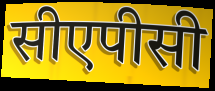
सीएपीसी